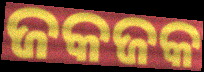
ଜକଜକ